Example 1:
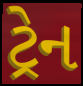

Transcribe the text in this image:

ટ્રેન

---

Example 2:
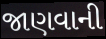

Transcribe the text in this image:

જાણવાની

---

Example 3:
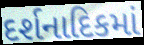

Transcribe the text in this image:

દર્શનાદિકમાં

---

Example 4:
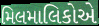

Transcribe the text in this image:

મિલમાલિકોએ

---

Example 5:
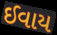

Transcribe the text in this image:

ઈવાય